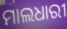
ମାଲଧାରୀ